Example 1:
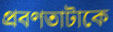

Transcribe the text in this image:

প্রবণতাটাকে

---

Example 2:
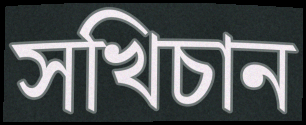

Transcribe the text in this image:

সখিচান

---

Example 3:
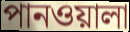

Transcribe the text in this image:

পানওয়ালা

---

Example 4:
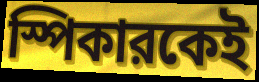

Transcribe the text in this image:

স্পিকারকেই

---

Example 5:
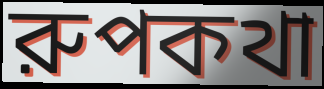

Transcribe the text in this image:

রুপকথা